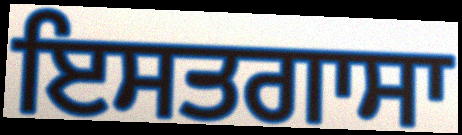
ਇਸਤਗਾਸਾ